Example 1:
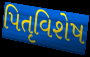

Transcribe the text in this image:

પિતૃવિશેષ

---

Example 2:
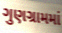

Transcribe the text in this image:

ગુણગ્રામમાં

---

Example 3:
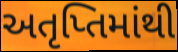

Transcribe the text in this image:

અતૃપ્તિમાંથી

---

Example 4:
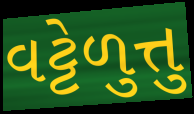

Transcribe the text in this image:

વટ્ટેળુત્તુ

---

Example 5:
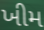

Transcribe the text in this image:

ખીમ